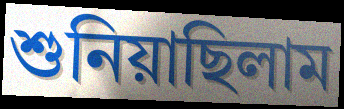
শুনিয়াছিলাম